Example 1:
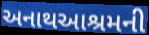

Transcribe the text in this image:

અનાથઆશ્રમની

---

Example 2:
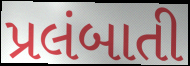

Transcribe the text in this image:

પ્રલંબાતી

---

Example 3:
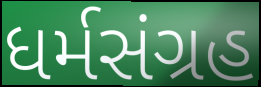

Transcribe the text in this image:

ધર્મસંગ્રહ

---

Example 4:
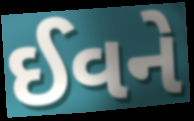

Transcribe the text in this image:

ઈવને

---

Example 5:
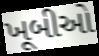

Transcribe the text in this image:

ખૂબીઓ